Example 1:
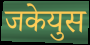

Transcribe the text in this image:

जकेयुस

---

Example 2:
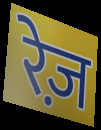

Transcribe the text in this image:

रेज़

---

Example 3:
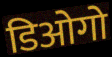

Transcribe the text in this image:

डिओगो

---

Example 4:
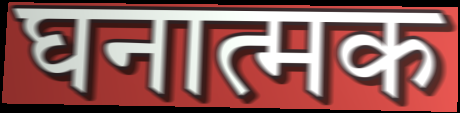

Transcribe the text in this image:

घनात्मक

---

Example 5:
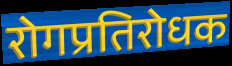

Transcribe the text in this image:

रोगप्रतिरोधक